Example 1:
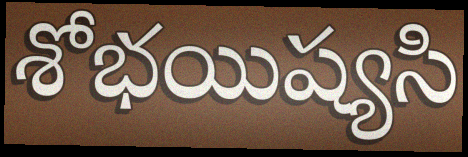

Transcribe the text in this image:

శోభయిష్యసి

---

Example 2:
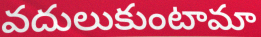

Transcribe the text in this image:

వదులుకుంటామా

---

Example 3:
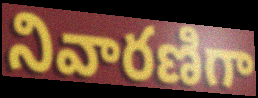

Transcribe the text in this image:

నివారణిగా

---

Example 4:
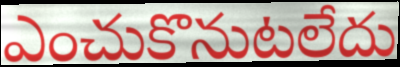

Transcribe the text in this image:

ఎంచుకొనుటలేదు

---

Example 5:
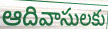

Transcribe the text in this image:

ఆదివాసులకు